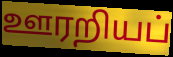
ஊரறியப்